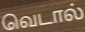
வெடால்